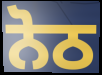
ਨੋਠ